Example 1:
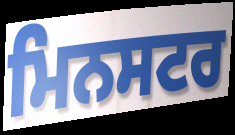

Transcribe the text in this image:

ਮਿਨਸਟਰ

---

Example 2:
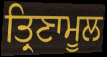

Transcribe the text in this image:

ਤ੍ਰਿਣਾਮੂਲ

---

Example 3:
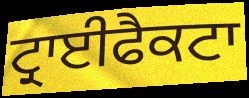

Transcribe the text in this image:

ਟ੍ਰਾਈਫੈਕਟਾ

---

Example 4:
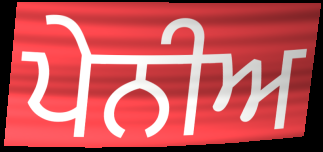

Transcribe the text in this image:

ਪੇਨੀਅ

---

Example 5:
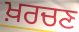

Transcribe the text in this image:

ਖ਼ਰਚਣ